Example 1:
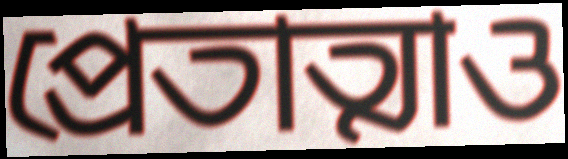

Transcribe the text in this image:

প্রেতাত্মাও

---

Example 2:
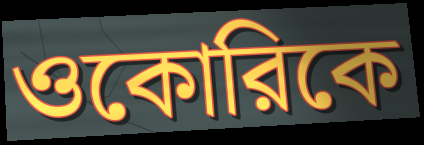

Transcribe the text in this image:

ওকোরিকে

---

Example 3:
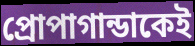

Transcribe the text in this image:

প্রোপাগান্ডাকেই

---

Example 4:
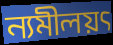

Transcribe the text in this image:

ন্যমীলয়ৎ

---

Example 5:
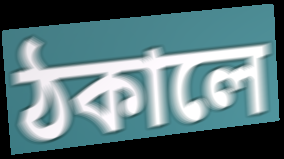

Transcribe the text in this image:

ঠকালে